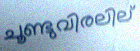
ചൂണ്ടുവിരലില്